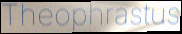
Theophrastus